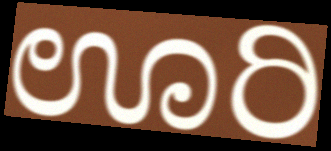
ಊರಿ